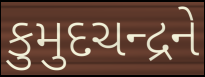
કુમુદચન્દ્રને